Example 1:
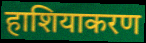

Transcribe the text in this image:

हाशियाकरण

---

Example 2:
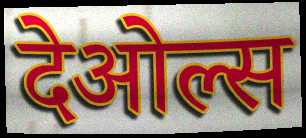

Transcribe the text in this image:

देओल्स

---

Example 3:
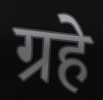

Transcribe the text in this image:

ग्रहे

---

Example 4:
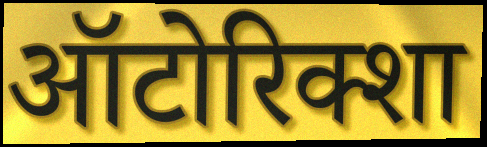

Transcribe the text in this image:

ऑटोरिक्शा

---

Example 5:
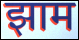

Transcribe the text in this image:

झाम